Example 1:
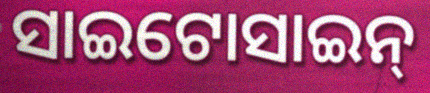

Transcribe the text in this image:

ସାଇଟୋସାଇନ୍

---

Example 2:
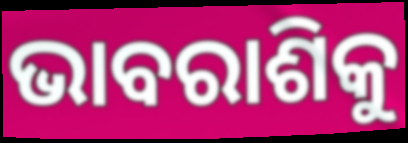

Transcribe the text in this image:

ଭାବରାଶିକୁ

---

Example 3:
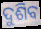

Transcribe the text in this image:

ଦୁଶିବ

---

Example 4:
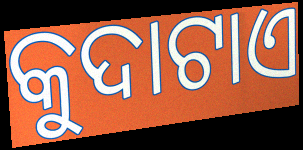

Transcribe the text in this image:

କୁଦାଟାଏ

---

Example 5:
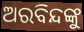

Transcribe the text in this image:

ଅରବିନ୍ଦଙ୍କୁ